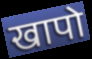
खापो